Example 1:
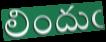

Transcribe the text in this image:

లిందుఁ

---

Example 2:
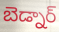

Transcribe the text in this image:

బెడ్నార్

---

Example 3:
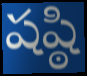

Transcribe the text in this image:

షష్ఠి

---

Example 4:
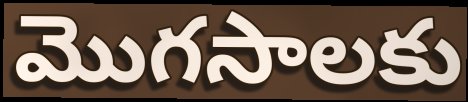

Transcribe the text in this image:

మొగసాలకు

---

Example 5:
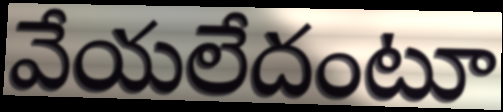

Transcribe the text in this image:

వేయలేదంటూ